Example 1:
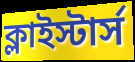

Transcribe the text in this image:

ক্লাইস্টার্স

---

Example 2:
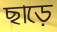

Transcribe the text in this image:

ছাড়ে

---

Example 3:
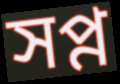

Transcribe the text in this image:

সপ্ন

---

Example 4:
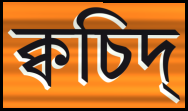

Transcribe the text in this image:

ক্বচিদ্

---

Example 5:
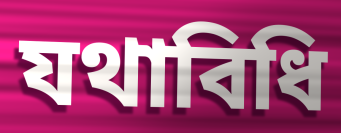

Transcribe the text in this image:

যথাবিধি